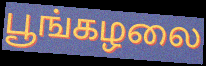
பூங்கழலை